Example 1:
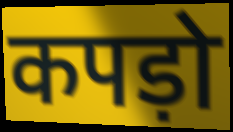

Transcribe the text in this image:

कपड़ो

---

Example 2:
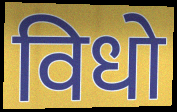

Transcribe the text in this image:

विधो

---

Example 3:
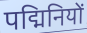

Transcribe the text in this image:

पद्मिनियों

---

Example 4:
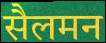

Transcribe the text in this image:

सैलमन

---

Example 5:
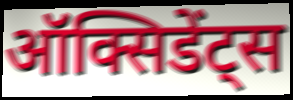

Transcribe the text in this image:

ऑक्सिडेंट्स